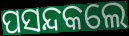
ପସନ୍ଦକଲେ